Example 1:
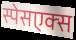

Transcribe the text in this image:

स्‍पेसएक्‍स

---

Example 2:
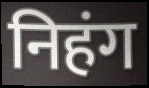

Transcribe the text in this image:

निहंग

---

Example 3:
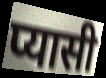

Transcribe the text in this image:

प्यासी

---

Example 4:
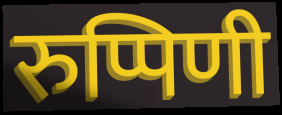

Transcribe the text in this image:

रुप्पिणी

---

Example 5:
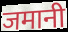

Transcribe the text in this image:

जमानी